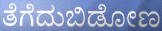
ತೆಗೆದುಬಿಡೋಣ